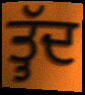
ਤ੍ਤੱਦ